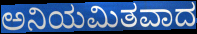
ಅನಿಯಮಿತವಾದ